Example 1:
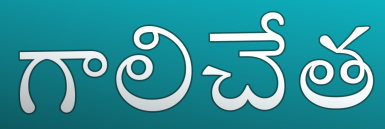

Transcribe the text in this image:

గాలిచేత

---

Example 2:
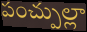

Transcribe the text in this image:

పంచ్పుల్లా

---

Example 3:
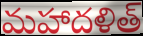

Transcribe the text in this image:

మహాదళిత్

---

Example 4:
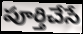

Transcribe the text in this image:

పూర్తిచేసే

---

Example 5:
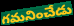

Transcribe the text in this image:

గమనించేడు